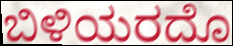
ಬಿಳಿಯರದೊ